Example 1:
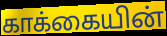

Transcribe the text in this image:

காக்கையின்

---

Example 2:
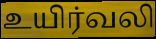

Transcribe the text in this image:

உயிர்வலி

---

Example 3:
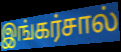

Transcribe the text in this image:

இங்கர்சால்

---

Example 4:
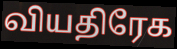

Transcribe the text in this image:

வியதிரேக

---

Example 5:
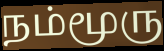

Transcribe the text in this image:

நம்மூரு